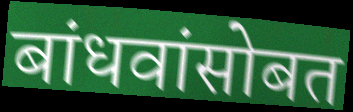
बांधवांसोबत